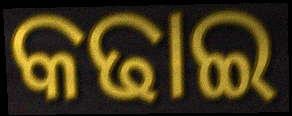
କଢାଇ